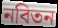
নবিতন